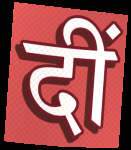
दीं